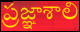
ప్రజ్ఞాశాలి